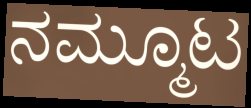
ನಮ್ಮೂಟ